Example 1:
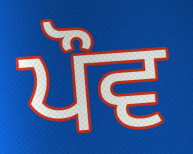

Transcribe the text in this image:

ਪੌਵ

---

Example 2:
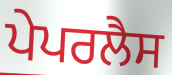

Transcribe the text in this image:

ਪੇਪਰਲੈਸ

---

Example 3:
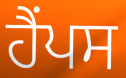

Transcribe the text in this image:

ਹੈਂਪਸ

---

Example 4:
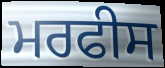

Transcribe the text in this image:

ਮਰਫੀਸ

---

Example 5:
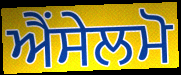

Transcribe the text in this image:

ਐਂਸੇਲਮੋ